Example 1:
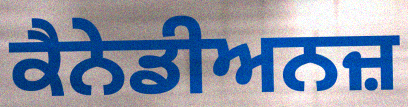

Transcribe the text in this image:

ਕੈਨੇਡੀਅਨਜ਼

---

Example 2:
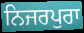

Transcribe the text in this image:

ਨਿਜਰਪੁਰਾ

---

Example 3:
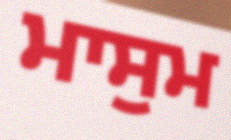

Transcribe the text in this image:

ਮਾਸੁਮ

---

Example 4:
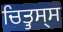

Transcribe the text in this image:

ਚਿਤ੍ਤਸ੍ਸ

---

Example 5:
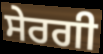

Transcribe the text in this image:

ਸੇਰਗੀ